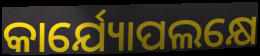
କାର୍ଯ୍ୟୋପଲକ୍ଷେ